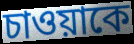
চাওয়াকে